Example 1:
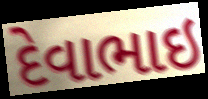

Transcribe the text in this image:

દેવાભાઇ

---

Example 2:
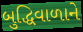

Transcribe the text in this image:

બુદ્ધિવાળાને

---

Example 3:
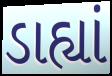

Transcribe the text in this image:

ડાહ્યાં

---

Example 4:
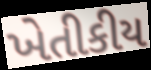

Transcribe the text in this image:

ખેતીકીય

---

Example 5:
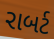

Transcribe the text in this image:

રાબર્ટ